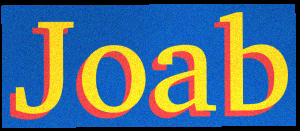
Joab